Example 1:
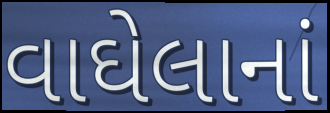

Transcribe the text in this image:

વાઘેલાનાં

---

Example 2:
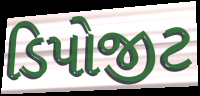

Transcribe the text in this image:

ડિપોજીટ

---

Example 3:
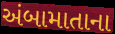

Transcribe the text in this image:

અંબામાતાના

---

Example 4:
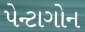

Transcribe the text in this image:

પેન્ટાગોન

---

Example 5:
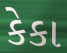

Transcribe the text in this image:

કેકા